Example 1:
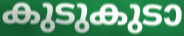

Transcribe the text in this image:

കുടുകുടാ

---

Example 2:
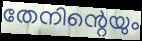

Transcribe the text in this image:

തേനിന്റെയും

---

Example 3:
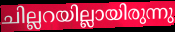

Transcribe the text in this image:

ചില്ലറയില്ലായിരുന്നു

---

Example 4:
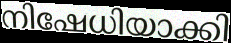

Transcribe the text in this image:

നിഷേധിയാക്കി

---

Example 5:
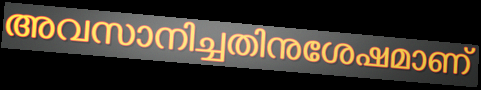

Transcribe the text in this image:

അവസാനിച്ചതിനുശേഷമാണ്